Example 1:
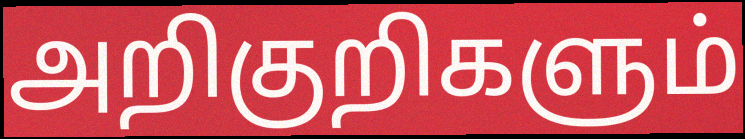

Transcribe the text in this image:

அறிகுறிகளும்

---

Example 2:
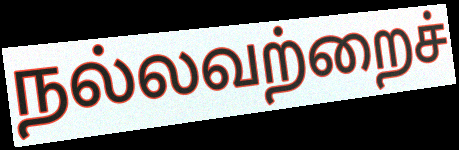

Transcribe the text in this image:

நல்லவற்றைச்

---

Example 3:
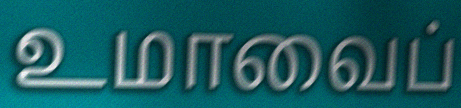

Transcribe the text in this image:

உமாவைப்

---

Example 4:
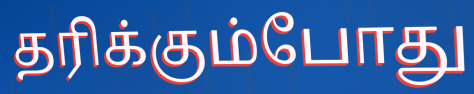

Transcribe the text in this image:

தரிக்கும்போது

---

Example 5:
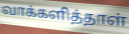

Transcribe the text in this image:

வாக்களித்தாள்